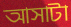
আসাটা